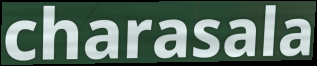
charasala